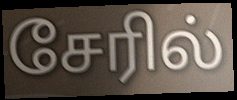
சேரில்